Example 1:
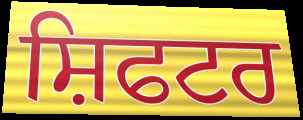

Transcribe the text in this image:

ਸ਼ਿਫਟਰ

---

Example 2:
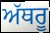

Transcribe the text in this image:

ਅੱਥਰੂ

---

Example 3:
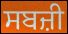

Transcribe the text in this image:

ਸਬਜ਼ੀ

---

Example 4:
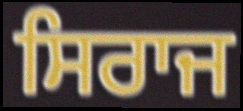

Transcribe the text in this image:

ਸਿਰਾਜ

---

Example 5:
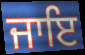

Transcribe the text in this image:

ਜਾਇ